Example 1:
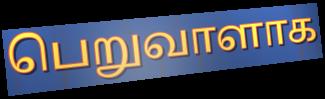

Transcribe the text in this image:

பெறுவாளாக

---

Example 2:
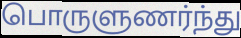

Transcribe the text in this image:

பொருளுணர்ந்து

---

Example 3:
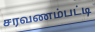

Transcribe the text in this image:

சரவணம்பட்டி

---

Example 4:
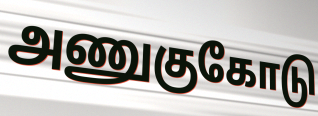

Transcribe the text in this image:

அணுகுகோடு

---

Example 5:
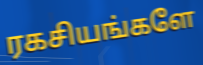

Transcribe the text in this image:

ரகசியங்களே